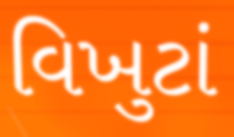
વિખુટાં